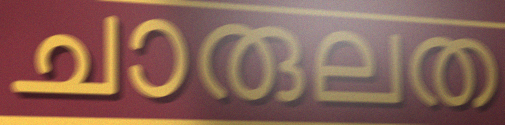
ചാരുലത